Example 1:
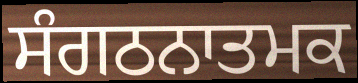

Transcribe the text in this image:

ਸੰਗਠਨਾਤਮਕ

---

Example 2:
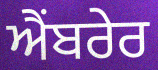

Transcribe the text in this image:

ਐਂਬਰੇਰ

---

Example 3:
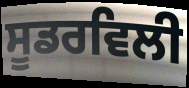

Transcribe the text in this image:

ਸੂਡਰਵਿਲੀ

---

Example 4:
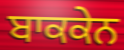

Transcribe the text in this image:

ਬਾਕਕੇਨ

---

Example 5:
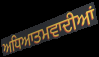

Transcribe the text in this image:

ਅਧਿਆਤਮਵਾਦੀਆਂ